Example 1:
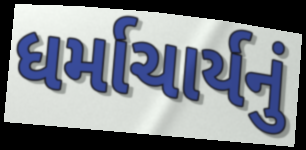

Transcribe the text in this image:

ધર્માચાર્યનું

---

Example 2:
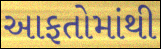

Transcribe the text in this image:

આફતોમાંથી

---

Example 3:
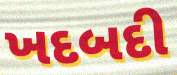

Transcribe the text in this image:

ખદબદી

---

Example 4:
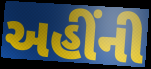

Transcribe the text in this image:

અહીંની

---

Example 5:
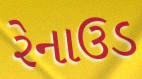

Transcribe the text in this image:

રેનાઉડ